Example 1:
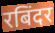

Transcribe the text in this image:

रबिंदर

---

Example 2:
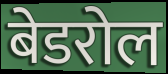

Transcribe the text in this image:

बेडरोल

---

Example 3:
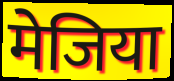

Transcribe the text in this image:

मेजिया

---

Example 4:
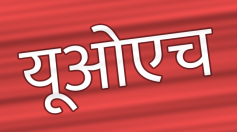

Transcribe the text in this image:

यूओएच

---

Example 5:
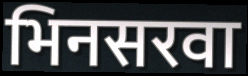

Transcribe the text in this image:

भिनसरवा